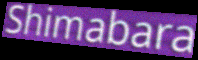
Shimabara